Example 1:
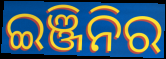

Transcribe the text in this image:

ଇଞ୍ଜିନିର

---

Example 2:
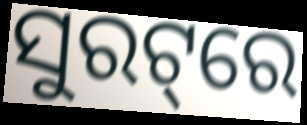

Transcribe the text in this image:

ସୁରଟ୍‌ରେ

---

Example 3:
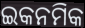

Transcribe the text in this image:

ଇକନମିକ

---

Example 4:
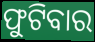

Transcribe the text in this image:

ଫୁଟିବାର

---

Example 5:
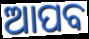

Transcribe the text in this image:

ଆପବ